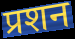
प्रशन